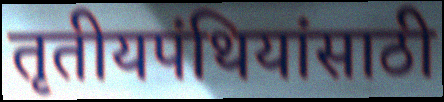
तृतीयपंथियांसाठी